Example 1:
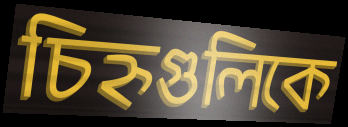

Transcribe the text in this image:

চিহ্নগুলিকে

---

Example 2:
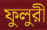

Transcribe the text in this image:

ফুলুরী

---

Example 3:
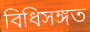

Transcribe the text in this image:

বিধিসঙ্গত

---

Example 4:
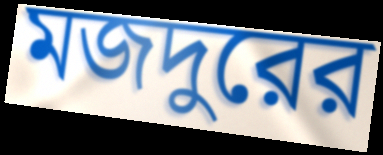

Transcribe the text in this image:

মজদুরের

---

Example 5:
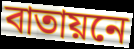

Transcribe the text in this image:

বাতায়নে